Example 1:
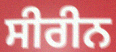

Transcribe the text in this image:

ਸੀਰੀਨ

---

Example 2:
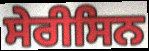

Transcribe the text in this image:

ਸੇਰੀਸਿਨ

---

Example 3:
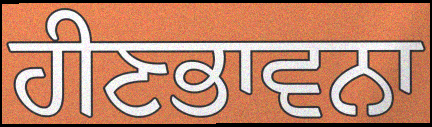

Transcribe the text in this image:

ਹੀਣਭਾਵਨਾ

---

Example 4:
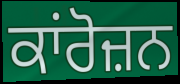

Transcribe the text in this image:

ਕਾਂਰੋਜ਼ਨ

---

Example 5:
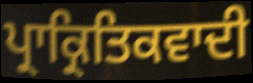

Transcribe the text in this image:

ਪ੍ਰਾਕ੍ਰਿਤਿਕਵਾਦੀ